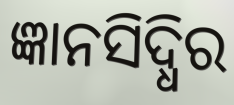
ଜ୍ଞାନସିଦ୍ଧିର